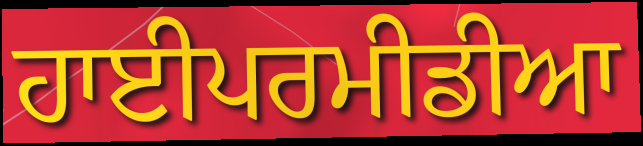
ਹਾਈਪਰਮੀਡੀਆ